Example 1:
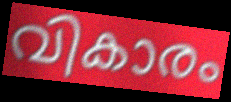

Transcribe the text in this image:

വികാരം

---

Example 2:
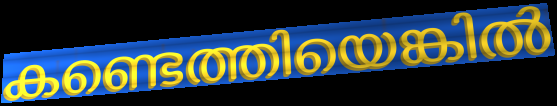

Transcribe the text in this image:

കണ്ടെത്തിയെങ്കിൽ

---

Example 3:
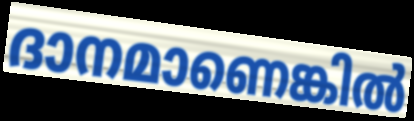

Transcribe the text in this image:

ദാനമാണെങ്കിൽ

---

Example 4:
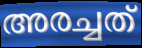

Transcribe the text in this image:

അരച്ചത്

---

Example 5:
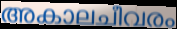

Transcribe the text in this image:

അകാലചീവരം